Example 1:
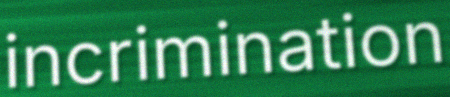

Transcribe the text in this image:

incrimination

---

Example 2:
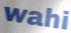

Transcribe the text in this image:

wahi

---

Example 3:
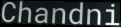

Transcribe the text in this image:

Chandni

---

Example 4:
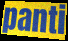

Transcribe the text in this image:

panti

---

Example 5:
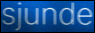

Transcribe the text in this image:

sjunde